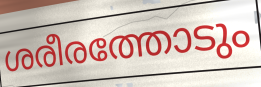
ശരീരത്തോടും